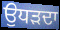
ਉਧੜਦਾ